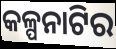
କଳ୍ପନାଟିର